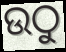
ଉଠୁ